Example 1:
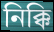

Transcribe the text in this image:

নিক্কি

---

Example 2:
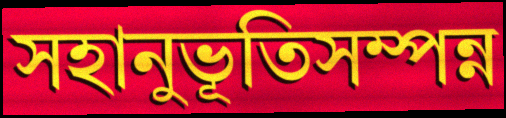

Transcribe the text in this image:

সহানুভূতিসম্পন্ন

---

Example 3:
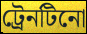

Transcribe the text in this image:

ট্রেনটিনো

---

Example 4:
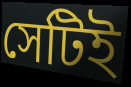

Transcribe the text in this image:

সেটিই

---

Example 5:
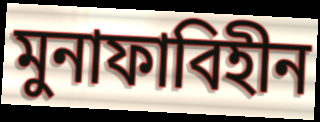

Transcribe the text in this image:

মুনাফাবিহীন